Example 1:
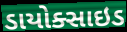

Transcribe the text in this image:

ડાયોક્સાઇડ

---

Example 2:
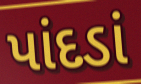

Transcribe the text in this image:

પાંદડાં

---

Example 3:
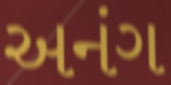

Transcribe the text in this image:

અનંગ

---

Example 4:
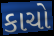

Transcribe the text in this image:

કાચો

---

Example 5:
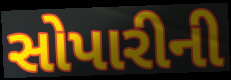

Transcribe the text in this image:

સોપારીની